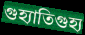
গুহ্যাতিগুহ্য